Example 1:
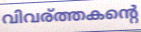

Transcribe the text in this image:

വിവര്ത്തകന്റെ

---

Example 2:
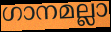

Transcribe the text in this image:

ഗാനമല്ലാ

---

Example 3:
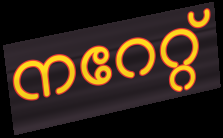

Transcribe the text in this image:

നറേറ്റ്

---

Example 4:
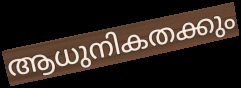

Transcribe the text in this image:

ആധുനികതക്കും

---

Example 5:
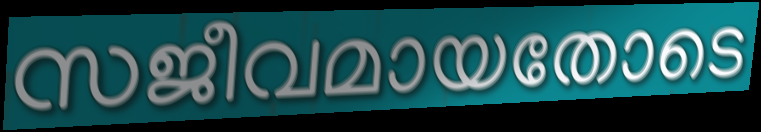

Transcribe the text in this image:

സജീവമായതോടെ